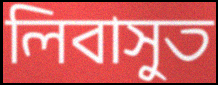
লিবাসুত